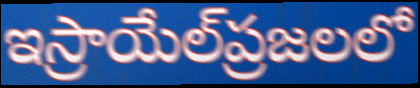
ఇస్రాయేల్‌ప్రజలలో